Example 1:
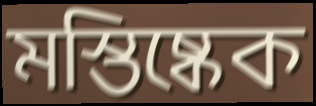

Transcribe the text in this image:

মস্তিষ্কেক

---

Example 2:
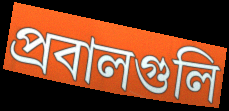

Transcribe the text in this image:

প্রবালগুলি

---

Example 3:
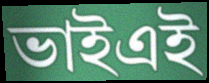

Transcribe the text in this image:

ভাইএই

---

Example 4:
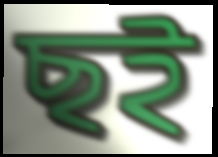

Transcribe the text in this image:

ছই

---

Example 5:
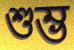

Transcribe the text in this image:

শুম্ভ